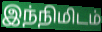
இந்நிமிடம்